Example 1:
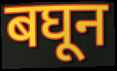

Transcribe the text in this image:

बघून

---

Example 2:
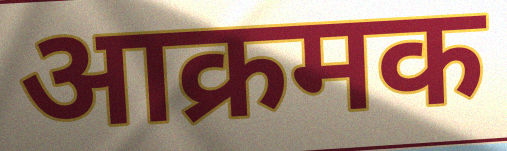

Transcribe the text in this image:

आक्रमक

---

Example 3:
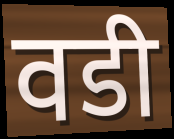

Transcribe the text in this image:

वडी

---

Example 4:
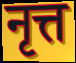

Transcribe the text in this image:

नृत्त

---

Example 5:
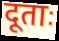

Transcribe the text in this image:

दूताः